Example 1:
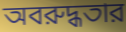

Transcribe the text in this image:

অবরুদ্ধতার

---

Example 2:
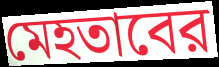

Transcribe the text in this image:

মেহতাবের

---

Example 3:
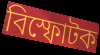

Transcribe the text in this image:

বিস্ফোটক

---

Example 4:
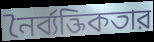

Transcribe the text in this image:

নৈর্ব্যক্তিকতার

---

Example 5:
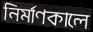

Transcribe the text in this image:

নির্মাণকালে